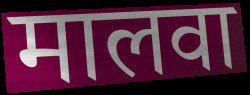
मालवा